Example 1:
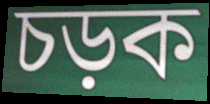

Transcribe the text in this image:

চড়ক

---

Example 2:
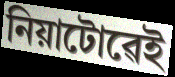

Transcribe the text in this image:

নিয়াটোৱেই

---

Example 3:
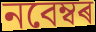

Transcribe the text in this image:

নবেম্বৰ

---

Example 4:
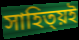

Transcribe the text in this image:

সাহিত্য়ই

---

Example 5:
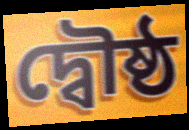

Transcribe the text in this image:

দ্বৌষ্ঠ